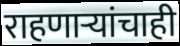
राहणाऱ्यांचाही